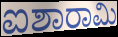
ಐಶಾರಾಮಿ